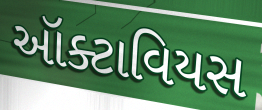
ઑક્ટાવિયસ